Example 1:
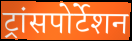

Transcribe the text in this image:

ट्रांसपोर्टेशन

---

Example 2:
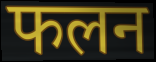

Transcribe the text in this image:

फलन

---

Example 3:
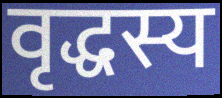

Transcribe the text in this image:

वृद्धस्य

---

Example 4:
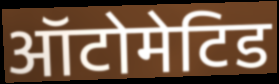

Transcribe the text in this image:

ऑटोमेटिड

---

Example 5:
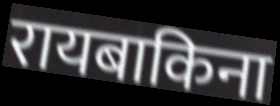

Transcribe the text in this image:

रायबाकिना